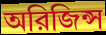
অরিজিন্স